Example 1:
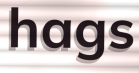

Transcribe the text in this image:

hags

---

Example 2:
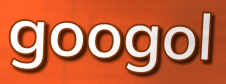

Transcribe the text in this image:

googol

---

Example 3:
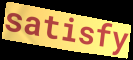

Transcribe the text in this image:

satisfy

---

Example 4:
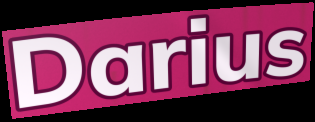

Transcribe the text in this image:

Darius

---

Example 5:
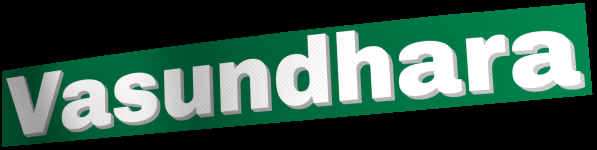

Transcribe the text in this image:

Vasundhara